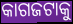
କାଗଜଟାକୁ